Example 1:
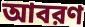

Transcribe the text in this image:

আবরণ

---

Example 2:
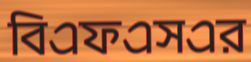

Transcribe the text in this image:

বিএফএসএর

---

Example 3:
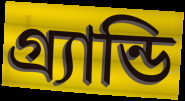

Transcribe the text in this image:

গ্র্যান্ডি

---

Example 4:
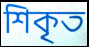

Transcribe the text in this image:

শিকৃত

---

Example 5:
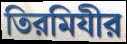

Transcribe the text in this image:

তিরমিযীর